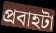
প্রবাহটা